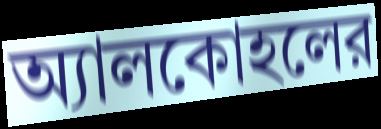
অ্যালকোহলের